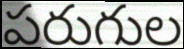
పరుగుల